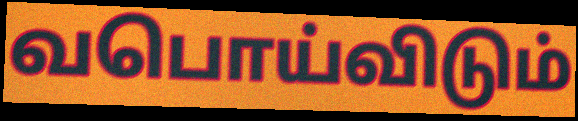
வபொய்விடும்